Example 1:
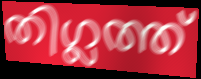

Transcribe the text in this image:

തിഗ്ലത്ത്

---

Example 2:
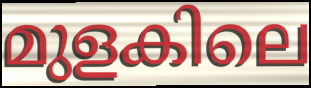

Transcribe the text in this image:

മുളകിലെ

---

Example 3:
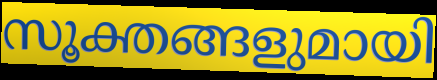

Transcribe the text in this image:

സൂക്തങ്ങളുമായി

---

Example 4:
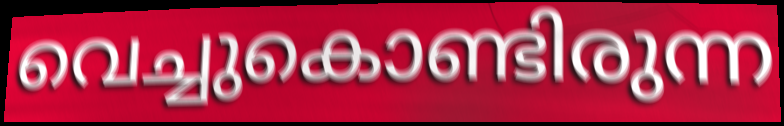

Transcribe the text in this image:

വെച്ചുകൊണ്ടിരുന്ന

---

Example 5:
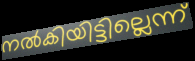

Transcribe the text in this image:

നൽകിയിട്ടില്ലെന്ന്